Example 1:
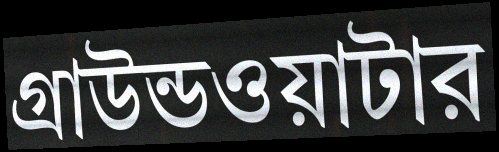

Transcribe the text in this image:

গ্রাউন্ডওয়াটার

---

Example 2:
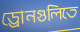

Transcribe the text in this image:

ড্রোনগুলিতে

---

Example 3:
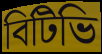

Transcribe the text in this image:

বিটিভি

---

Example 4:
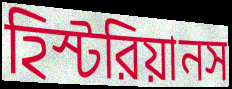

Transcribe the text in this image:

হিস্টরিয়ানস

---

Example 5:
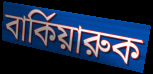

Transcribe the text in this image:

বার্কিয়ারুক